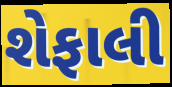
શેફાલી